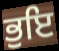
ਭੁਇ